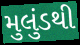
મુલુંડથી